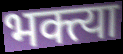
भक्त्या